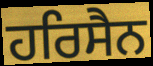
ਹਰਿਸੈਨ